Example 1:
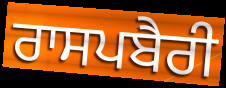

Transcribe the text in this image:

ਰਾਸਪਬੈਰੀ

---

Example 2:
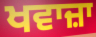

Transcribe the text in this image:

ਖਵਾਜ਼ਾ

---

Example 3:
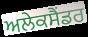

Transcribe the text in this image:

ਅਲੇਕਸੈਂਡਰ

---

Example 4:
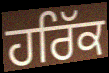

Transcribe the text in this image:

ਹਰਿੱਕ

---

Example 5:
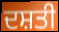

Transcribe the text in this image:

ਦਸ਼ਤੀ